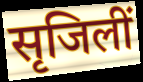
सृजिलीं